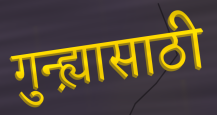
गुन्ह्य़ासाठी